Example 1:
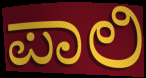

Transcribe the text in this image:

ಪಾಲಿ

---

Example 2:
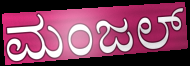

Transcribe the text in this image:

ಮಂಜಲ್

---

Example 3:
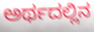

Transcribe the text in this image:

ಅರ್ಥದಲ್ಲಿನ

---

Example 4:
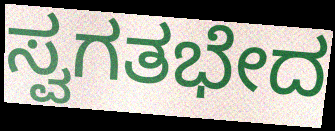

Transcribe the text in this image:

ಸ್ವಗತಭೇದ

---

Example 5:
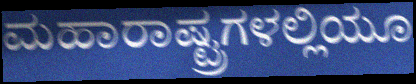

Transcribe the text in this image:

ಮಹಾರಾಷ್ಟ್ರಗಳಲ್ಲಿಯೂ